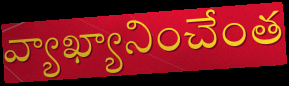
వ్యాఖ్యానించేంత